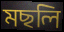
মছলি